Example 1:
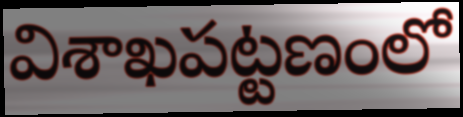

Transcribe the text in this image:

విశాఖపట్టణంలో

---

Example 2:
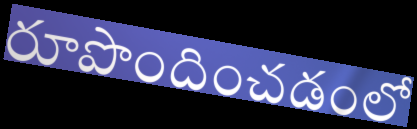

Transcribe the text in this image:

రూపొందించడంలో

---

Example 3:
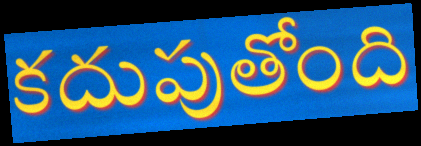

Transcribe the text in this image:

కదుపుతోంది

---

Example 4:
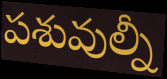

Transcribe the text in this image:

పశువుల్నీ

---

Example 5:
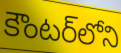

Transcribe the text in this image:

కౌంటర్‌లోని